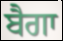
ਬੈਗਾ